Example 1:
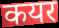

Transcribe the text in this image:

कयर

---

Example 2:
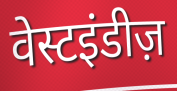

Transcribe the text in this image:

वेस्टइंडीज़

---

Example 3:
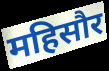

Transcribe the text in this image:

महिसौर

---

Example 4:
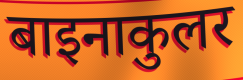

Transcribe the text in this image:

बाइनाकुलर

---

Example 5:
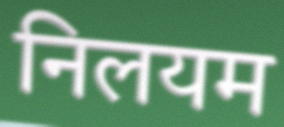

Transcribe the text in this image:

निलयम